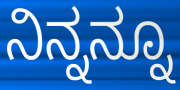
ನಿನ್ನನ್ನೂ